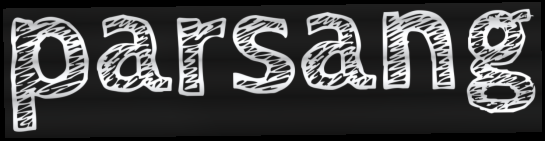
parsang